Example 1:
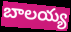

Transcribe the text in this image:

బాలయ్య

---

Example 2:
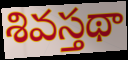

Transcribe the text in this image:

శివస్తథా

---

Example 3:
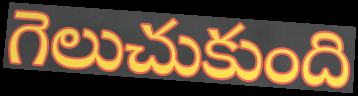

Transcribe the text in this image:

గెలుచుకుంది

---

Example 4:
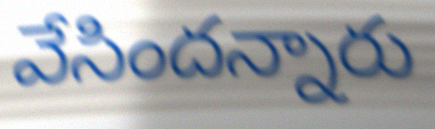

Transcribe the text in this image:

వేసిందన్నారు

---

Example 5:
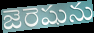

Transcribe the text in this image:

జెరెషును